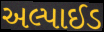
અલ્પાઈડ